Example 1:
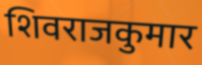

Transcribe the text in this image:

शिवराजकुमार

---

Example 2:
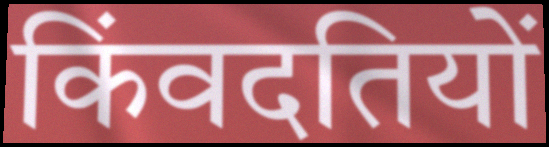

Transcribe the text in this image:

किंवदतियों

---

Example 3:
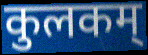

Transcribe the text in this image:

कुलकम्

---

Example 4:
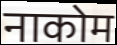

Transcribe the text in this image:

नाकोम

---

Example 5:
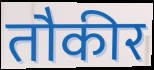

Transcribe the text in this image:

तौकीर